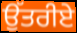
ਉੱਤਰੀਏ